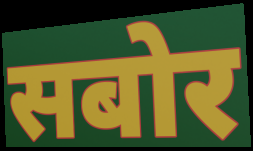
सबोर